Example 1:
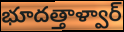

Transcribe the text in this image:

భూదత్తాళ్వార్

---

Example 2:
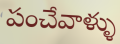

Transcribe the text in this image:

పంచేవాళ్ళు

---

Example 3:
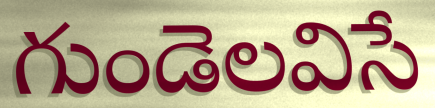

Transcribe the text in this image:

గుండెలవిసే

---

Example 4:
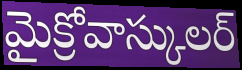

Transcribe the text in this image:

మైక్రోవాస్కులర్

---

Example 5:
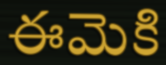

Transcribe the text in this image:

ఈమెకి